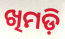
ଖିମଡ଼ି